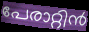
പേരാറ്റിൻ